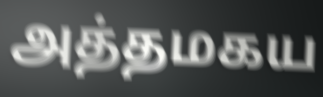
அத்தமகய